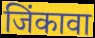
जिंकावा